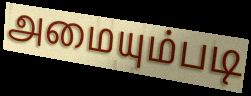
அமையும்படி